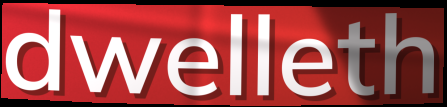
dwelleth